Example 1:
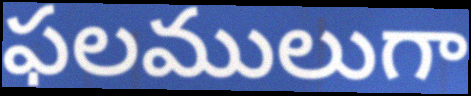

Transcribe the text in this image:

ఫలములుగా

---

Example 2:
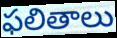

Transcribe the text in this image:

ఫలితాలు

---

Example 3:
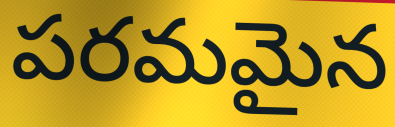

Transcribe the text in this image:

పరమమైన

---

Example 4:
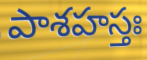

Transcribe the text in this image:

పాశహస్తః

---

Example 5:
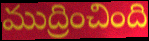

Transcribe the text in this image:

ముద్రించింది